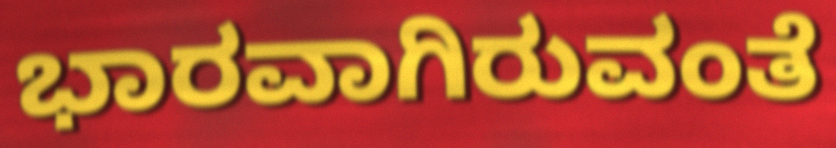
ಭಾರವಾಗಿರುವಂತೆ